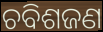
ଚବିଶଜଣ